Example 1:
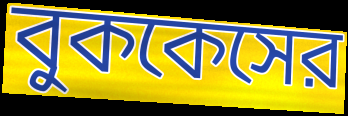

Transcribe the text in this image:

বুককেসের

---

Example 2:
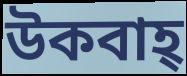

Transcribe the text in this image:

উকবাহ্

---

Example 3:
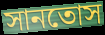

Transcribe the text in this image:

সানতোস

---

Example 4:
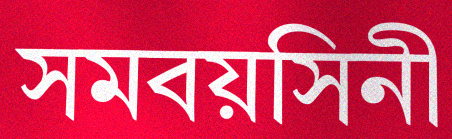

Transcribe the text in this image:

সমবয়সিনী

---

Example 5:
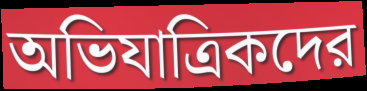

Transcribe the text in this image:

অভিযাত্রিকদের